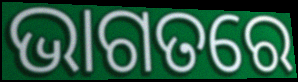
ଭାଗତରେ